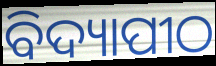
ବିଦ୍ୟାପୀଠ